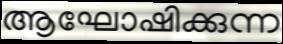
ആഘോഷിക്കുന്ന